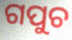
ଗପୁଚ